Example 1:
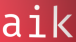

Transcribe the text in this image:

aik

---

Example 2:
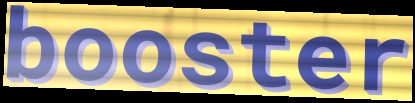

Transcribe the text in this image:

booster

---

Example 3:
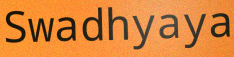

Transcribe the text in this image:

Swadhyaya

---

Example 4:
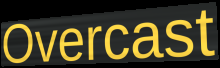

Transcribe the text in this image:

Overcast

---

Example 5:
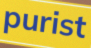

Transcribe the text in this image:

purist